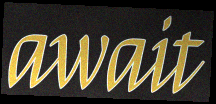
await